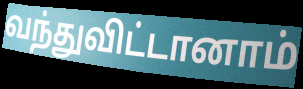
வந்துவிட்டானாம்